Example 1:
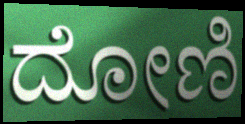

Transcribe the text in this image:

ದೋಣಿ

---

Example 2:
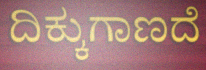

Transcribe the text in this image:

ದಿಕ್ಕುಗಾಣದೆ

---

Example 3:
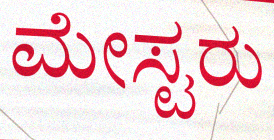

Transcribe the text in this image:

ಮೇಸ್ಟರು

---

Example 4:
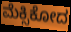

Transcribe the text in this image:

ಮೆಕ್ಸಿಕೋದ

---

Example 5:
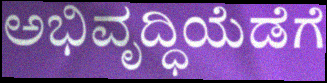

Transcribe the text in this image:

ಅಭಿವೃದ್ಧಿಯೆಡೆಗೆ